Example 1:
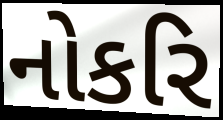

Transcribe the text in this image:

નોકરિ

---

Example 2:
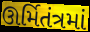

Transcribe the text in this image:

ઊર્મિતંત્રમાં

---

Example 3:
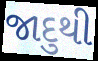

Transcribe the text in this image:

જાદુથી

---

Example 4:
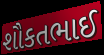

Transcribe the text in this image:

શૌકતભાઈ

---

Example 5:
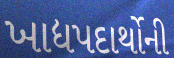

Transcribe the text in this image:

ખાદ્યપદાર્થોની